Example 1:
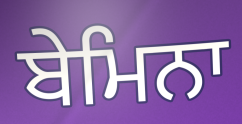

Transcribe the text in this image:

ਬੇਮਿਨਾ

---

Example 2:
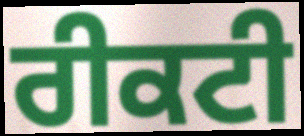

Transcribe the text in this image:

ਰੀਕਟੀ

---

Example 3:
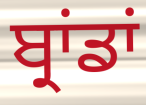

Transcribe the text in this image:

ਬ੍ਰਾਂਡਾਂ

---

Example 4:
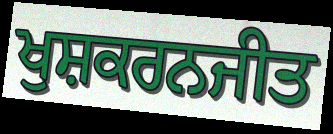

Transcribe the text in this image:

ਖੁਸ਼ਕਰਨਜੀਤ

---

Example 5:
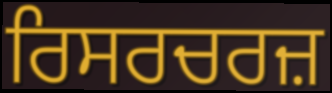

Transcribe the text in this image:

ਰਿਸਰਚਰਜ਼